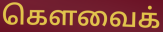
கௌவைக்